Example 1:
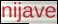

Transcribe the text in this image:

nijave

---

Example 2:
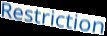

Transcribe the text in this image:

Restriction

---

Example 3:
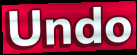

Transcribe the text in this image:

Undo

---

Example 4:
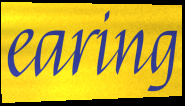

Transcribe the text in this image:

earing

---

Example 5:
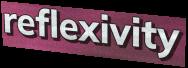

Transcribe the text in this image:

reflexivity